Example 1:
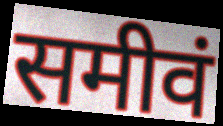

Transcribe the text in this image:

समीवं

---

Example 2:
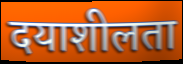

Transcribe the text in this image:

दयाशीलता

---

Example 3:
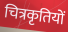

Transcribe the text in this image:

चित्रकृतियों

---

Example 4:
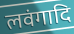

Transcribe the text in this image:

लवंगादि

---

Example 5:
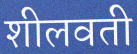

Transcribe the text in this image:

शीलवती